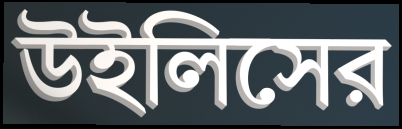
উইলিসের